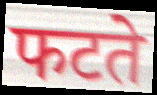
फटते